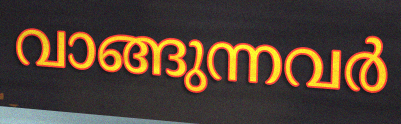
വാങ്ങുന്നവർ